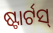
ଷ୍ଟାର୍ଟସ୍